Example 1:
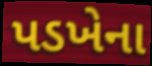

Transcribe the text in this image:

પડખેના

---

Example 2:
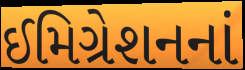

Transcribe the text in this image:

ઈમિગ્રેશનનાં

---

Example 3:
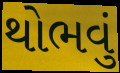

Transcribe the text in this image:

થોભવું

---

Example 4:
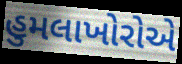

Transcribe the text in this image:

હુમલાખોરોએ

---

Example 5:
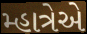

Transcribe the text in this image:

મ્હાત્રેએ